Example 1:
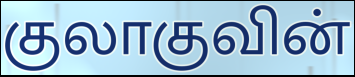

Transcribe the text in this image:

குலாகுவின்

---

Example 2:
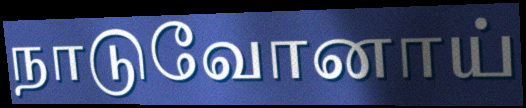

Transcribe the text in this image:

நாடுவோனாய்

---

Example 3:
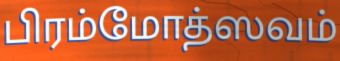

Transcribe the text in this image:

பிரம்மோத்ஸவம்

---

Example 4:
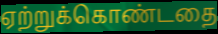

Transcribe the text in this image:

ஏற்றுக்கொண்டதை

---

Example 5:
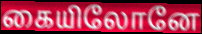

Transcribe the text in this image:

கையிலோனே